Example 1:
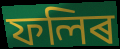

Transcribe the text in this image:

ফলিৰ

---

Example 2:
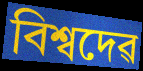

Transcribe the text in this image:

বিশ্বদেৱ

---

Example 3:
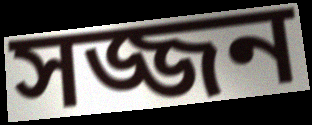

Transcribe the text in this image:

সজ্জন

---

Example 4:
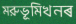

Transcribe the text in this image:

মৰুভূমিখনৰ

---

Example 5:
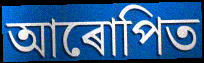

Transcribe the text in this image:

আৰোপিত